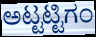
ಅಟ್ಟಟ್ಟಿಗಂ